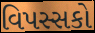
વિપસ્સકો